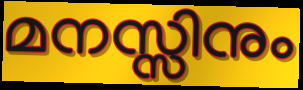
മനസ്സിനും